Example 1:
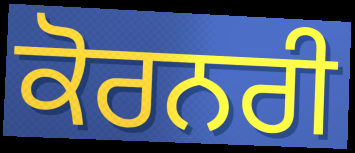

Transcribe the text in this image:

ਕੋਰਨਰੀ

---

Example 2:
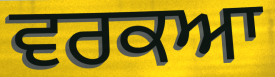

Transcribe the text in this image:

ਵਰਕਆ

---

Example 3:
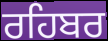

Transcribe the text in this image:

ਰਹਿਬਰ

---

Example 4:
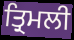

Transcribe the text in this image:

ਤ੍ਰਿਮਲੀ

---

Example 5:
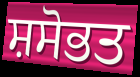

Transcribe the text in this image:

ਸ਼ਸੋਭਤ